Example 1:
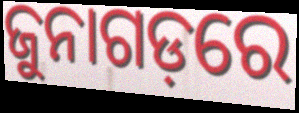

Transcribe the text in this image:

ଜୁନାଗଡ଼ରେ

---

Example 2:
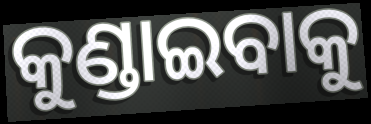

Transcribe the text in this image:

କୁଣ୍ଡାଇବାକୁ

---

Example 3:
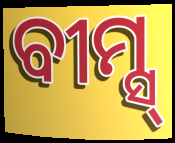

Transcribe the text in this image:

ବୀମ୍ସ୍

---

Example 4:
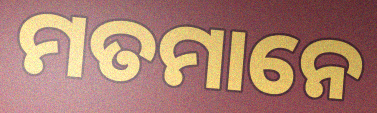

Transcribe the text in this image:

ମତମାନେ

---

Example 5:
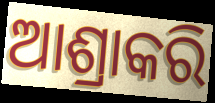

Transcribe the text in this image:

ଆଶ୍ରାକରି